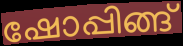
ഷോപ്പിങ്ങ്